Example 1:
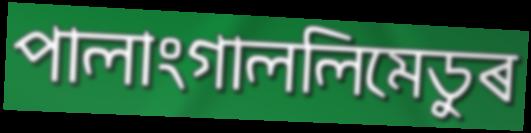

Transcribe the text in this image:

পালাংগাললিমেডুৰ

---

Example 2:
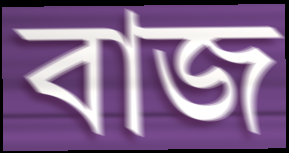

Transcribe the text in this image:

বাজ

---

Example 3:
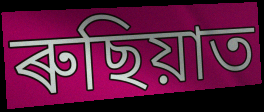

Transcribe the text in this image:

ৰুছিয়াত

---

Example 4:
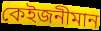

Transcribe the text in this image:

কেইজনীমান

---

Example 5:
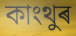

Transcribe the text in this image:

কাংথুৰ